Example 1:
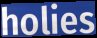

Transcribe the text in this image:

holies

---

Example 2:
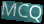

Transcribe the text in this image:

MCQ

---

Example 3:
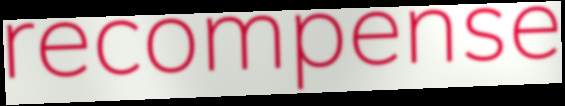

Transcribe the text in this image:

recompense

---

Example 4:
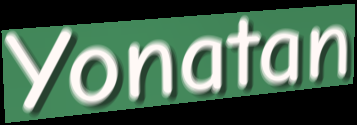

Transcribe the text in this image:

Yonatan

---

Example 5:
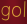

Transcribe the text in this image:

gol